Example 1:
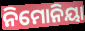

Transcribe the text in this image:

ନିମୋନିୟା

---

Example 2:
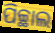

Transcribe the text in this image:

ପିଚ୍ଛାଲ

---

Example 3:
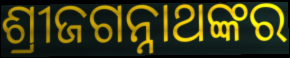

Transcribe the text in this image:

ଶ୍ରୀଜଗନ୍ନାଥଙ୍କର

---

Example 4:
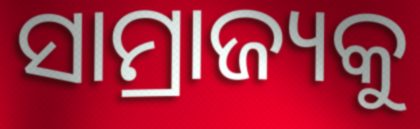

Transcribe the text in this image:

ସାମ୍ରାଜ୍ୟକୁ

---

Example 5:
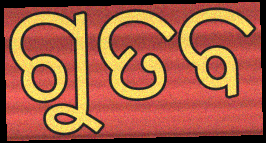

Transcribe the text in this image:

ଗୁତବ